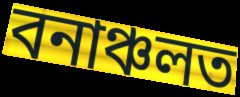
বনাঞ্চলত